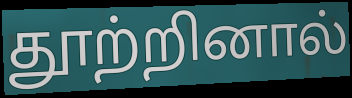
தூற்றினால்